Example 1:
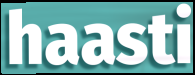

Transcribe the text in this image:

haasti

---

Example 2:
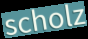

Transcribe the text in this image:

scholz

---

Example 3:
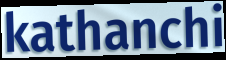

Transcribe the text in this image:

kathanchi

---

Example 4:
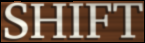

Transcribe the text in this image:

SHIFT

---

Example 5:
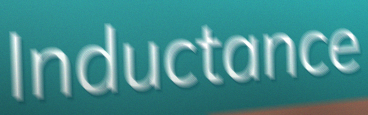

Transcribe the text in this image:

Inductance